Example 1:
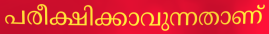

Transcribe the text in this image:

പരീക്ഷിക്കാവുന്നതാണ്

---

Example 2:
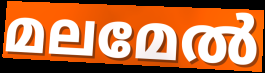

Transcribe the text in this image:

മലമേൽ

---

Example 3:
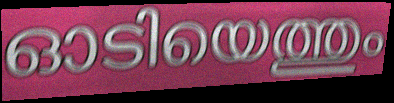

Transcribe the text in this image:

ഓടിയെത്തും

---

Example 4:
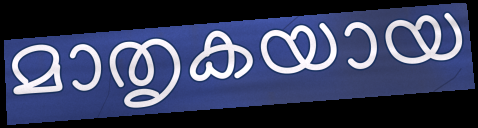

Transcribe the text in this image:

മാതൃകയായ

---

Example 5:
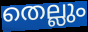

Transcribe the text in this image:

തെല്ലും